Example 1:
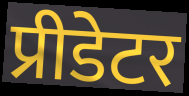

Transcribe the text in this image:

प्रीडेटर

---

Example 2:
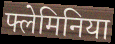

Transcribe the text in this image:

फ्लेमिनिया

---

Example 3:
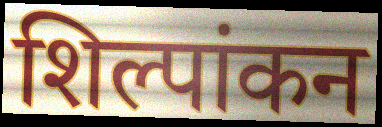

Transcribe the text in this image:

शिल्पांकन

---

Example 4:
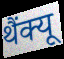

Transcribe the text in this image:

थैंक्यू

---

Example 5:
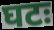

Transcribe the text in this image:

घटः